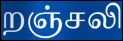
றஞ்சலி